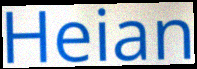
Heian